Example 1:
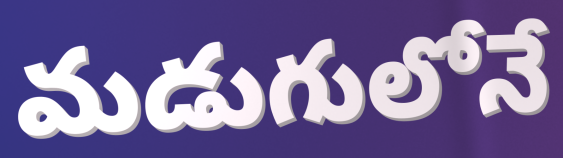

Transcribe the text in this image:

మడుగులోనే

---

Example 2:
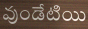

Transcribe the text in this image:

వుండేటియి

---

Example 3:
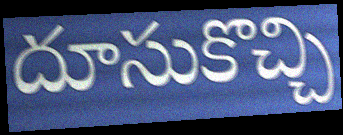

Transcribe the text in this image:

దూసుకొచ్చి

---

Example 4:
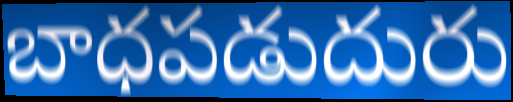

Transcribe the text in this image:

బాధపడుదురు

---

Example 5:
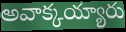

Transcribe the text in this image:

అవాక్కయ్యారు